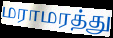
மராமரத்து